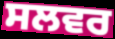
ਸਲਵਰ